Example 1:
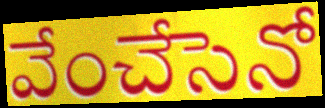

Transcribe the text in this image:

వేంచేసెనో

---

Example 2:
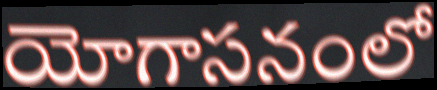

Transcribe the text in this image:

యోగాసనంలో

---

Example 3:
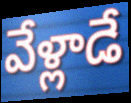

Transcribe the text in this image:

వేళ్లాడే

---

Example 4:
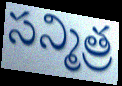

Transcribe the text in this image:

సన్మిత్ర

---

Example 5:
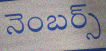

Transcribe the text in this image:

నెంబర్స్